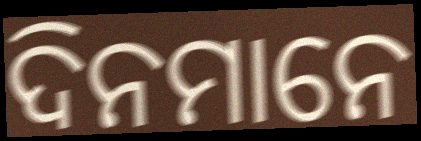
ଦିନମାନେ